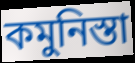
কমুনিস্তা